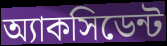
অ্যাকসিডেন্ট